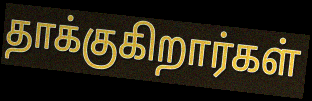
தாக்குகிறார்கள்